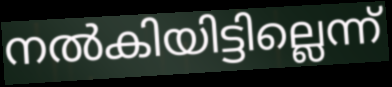
നൽകിയിട്ടില്ലെന്ന്